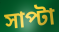
সাপ্টা